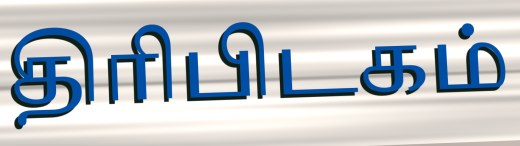
திரிபிடகம்